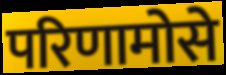
परिणामोसे